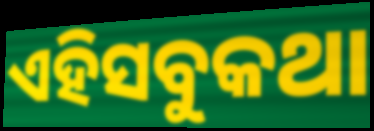
ଏହିସବୁକଥା